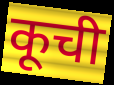
कूची